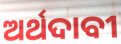
ଅର୍ଥଦାବୀ